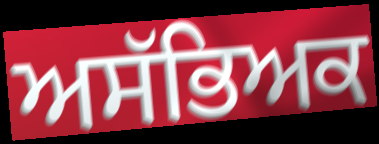
ਅਸੱਭਿਅਕ